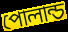
পোলান্ড